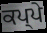
ਕਪ੍ਪੇ